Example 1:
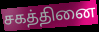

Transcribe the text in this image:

சகத்தினை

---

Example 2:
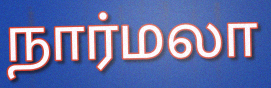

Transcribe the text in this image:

நார்மலா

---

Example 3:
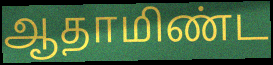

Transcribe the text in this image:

ஆதாமிண்ட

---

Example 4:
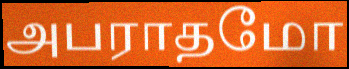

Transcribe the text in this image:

அபராதமோ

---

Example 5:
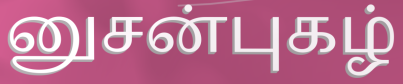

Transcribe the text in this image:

னுசன்புகழ்